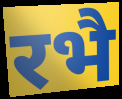
रभै